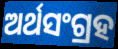
ଅର୍ଥସଂଗ୍ରହ